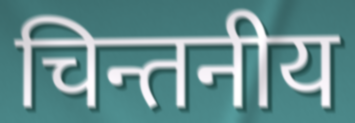
चिन्तनीय